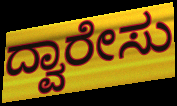
ದ್ವಾರೇಸು